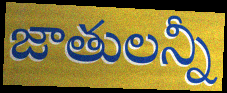
జాతులన్నీ